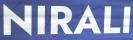
NIRALI